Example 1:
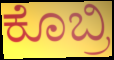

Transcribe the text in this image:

ಕೊಬ್ರಿ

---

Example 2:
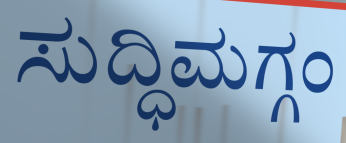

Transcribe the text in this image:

ಸುದ್ಧಿಮಗ್ಗಂ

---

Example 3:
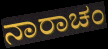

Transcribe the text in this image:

ನಾರಾಚಂ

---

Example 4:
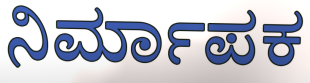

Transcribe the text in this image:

ನಿರ್ಮಾಪಕ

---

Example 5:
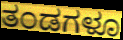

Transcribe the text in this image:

ತಂಡಗಳೂ